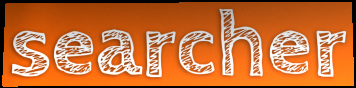
searcher